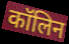
कॉलिन